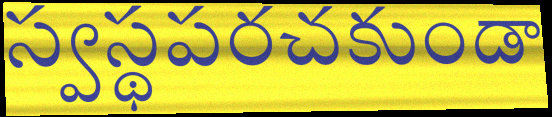
స్వస్థపరచకుండా